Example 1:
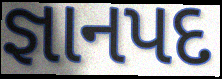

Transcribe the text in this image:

જ્ઞાનપદ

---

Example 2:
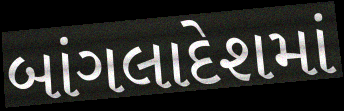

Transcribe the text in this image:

બાંગલાદેશમાં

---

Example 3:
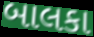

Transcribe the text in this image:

બાલકા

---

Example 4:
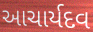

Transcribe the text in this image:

આચાર્યદવ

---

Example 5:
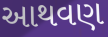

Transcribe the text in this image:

આથવણ